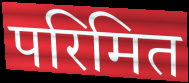
परिमित